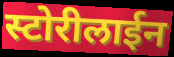
स्टोरीलाईन